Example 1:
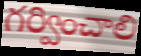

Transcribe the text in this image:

గర్వించాలి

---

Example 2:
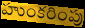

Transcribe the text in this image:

హుంకరింపు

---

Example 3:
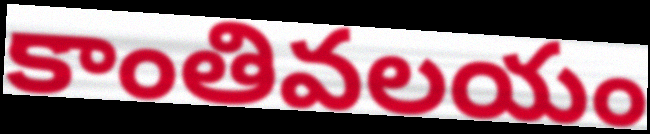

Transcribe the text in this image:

కాంతివలయం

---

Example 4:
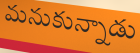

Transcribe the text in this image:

మనుకున్నాడు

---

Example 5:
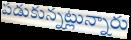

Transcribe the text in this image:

పడుకున్నట్లున్నారు